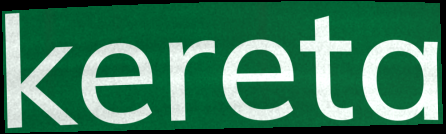
kereta